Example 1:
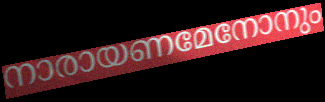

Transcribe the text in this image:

നാരായണമേനോനും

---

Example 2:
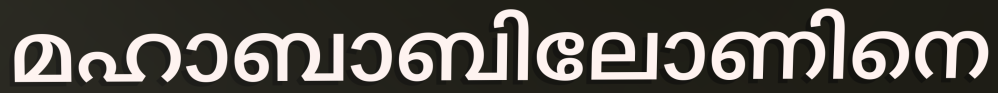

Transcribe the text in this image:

മഹാബാബിലോണിനെ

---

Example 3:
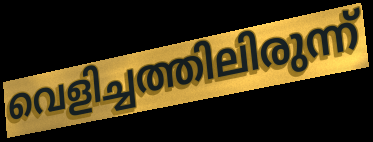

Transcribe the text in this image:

വെളിച്ചത്തിലിരുന്ന്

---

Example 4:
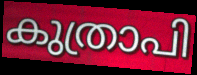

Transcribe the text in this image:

കുത്രാപി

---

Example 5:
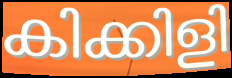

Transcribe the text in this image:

കിക്കിളി